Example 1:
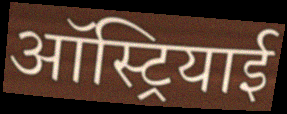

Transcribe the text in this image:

ऑस्ट्रियाई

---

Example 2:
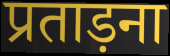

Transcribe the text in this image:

प्रताड़ना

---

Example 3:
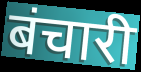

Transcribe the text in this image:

बंचारी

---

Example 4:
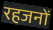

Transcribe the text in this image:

रहजनों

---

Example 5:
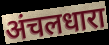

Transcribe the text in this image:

अंचलधारा